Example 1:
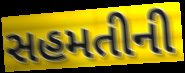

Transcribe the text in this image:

સહમતીની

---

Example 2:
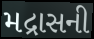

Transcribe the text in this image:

મદ્રાસની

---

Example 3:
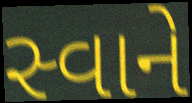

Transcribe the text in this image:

સ્વાને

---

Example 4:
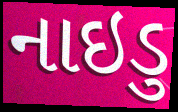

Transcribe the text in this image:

નાઇડુ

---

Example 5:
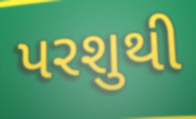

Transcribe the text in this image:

પરશુથી